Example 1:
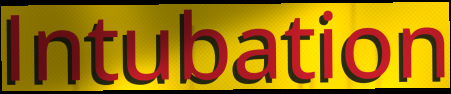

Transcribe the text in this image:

Intubation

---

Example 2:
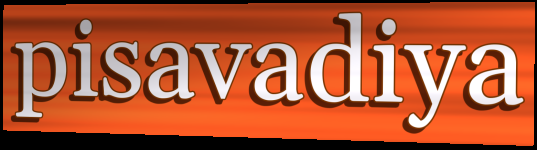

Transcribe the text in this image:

pisavadiya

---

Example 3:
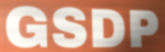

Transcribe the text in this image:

GSDP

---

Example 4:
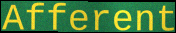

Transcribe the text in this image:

Afferent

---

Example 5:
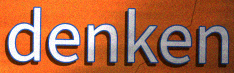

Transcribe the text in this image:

denken